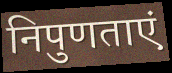
निपुणताएं